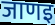
जाणइ